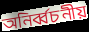
অনির্ব্বচনীয়